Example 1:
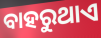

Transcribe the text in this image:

ବାହରୁଥାଏ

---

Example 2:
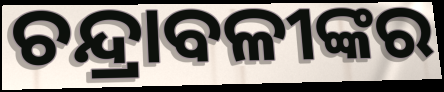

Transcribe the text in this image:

ଚନ୍ଦ୍ରାବଳୀଙ୍କର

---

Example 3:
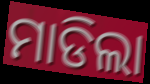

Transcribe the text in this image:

ମାଡିଲା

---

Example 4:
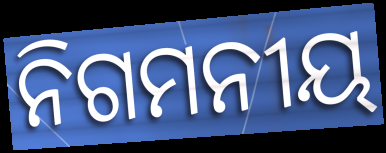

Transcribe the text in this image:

ନିଗମନୀୟ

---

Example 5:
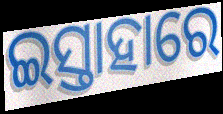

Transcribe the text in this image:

ଇସ୍ତାହାରେ